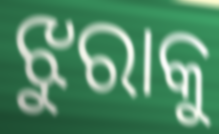
ଝୁରାକୁ